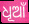
ଧୂଆଁ